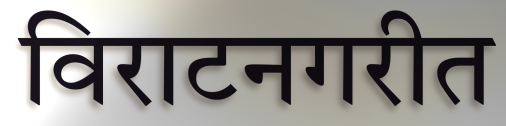
विराटनगरीत